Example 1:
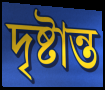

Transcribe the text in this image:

দৃষ্টান্ত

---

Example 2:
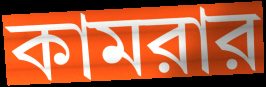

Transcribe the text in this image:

কামরার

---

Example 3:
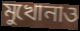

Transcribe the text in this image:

মুখোনাও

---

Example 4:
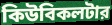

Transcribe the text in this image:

কিউবিকলটার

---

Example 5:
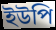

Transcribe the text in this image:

ইউপি